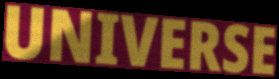
UNIVERSE